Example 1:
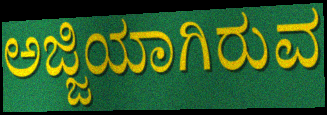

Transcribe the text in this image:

ಅಜ್ಜಿಯಾಗಿರುವ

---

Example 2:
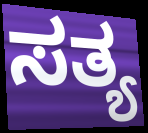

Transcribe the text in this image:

ಸತ್ಯ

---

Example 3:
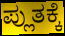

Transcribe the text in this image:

ಪ್ಲುತಕ್ಕೆ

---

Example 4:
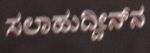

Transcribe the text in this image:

ಸಲಾಹುದ್ದೀನ್‍ನ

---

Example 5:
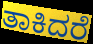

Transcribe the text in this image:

ತಾಕಿದರೆ